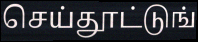
செய்தூட்டுங்